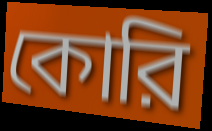
কোরি